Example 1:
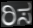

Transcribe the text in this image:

ರಿಸ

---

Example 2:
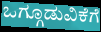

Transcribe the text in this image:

ಒಗ್ಗೂಡುವಿಕೆಗೆ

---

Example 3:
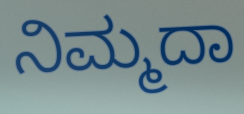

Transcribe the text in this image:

ನಿಮ್ಮದಾ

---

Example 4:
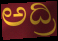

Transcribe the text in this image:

ಅದ್ರಿ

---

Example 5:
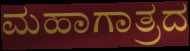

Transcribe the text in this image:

ಮಹಾಗಾತ್ರದ